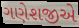
ગણેશજીએ